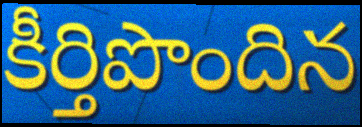
కీర్తిపొందిన